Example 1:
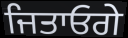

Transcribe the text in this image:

ਜਿਤਾਓਗੇ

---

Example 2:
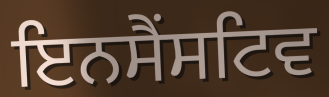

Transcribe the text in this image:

ਇਨਸੈਂਸਟਿਵ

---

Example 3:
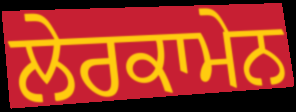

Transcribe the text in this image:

ਲੇਰਕਾਮੇਨ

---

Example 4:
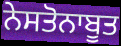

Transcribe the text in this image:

ਨੇਸਤੋਨਾਬੂਤ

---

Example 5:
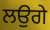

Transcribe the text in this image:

ਲਉਗੇ